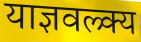
याज्ञवल्क्य